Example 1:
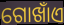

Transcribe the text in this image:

ଗୋଖାଁଏ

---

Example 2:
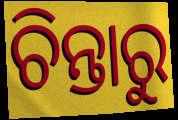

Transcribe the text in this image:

ଚିନ୍ତାରୁ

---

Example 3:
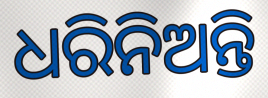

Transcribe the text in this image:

ଧରିନିଅନ୍ତି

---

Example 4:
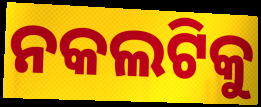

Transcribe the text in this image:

ନକଲଟିକୁ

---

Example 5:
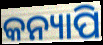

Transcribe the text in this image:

କନ୍ୟାପି